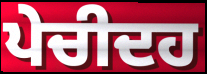
ਪੇਚੀਦਹ